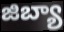
జిబ్యా